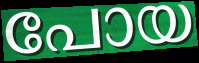
പോയ